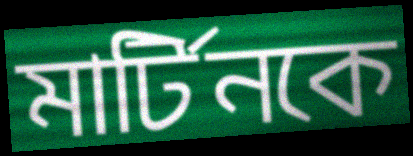
মার্টিনকে